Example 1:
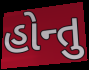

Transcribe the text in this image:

હોન્તુ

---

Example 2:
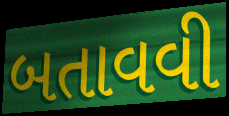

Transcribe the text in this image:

બતાવવી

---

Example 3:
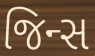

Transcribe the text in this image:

જિન્સ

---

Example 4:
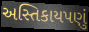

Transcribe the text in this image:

અસ્તિકાયપણું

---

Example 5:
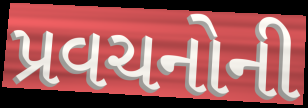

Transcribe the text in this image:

પ્રવચનોની